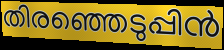
തിരഞ്ഞെടുപ്പിൻ